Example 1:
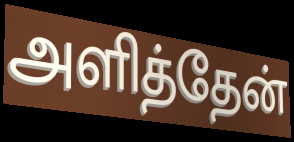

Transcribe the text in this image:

அளித்தேன்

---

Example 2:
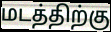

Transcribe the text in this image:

மடத்திற்கு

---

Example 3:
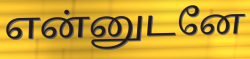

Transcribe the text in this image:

என்னுடனே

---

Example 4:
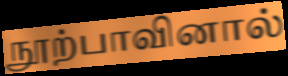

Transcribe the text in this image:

நூற்பாவினால்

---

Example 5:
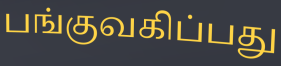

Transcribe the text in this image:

பங்குவகிப்பது